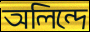
অলিন্দে